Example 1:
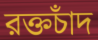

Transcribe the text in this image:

রক্তচাঁদ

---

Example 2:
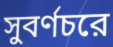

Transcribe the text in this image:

সুবর্ণচরে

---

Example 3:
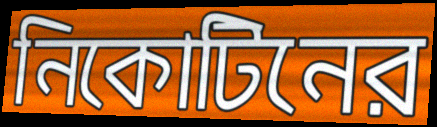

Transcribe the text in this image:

নিকোটিনের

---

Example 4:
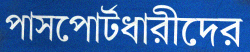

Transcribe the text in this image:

পাসপোর্টধারীদের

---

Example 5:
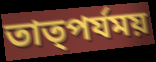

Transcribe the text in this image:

তাত্পর্যময়